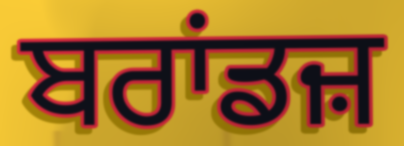
ਬਰਾਂਡਜ਼